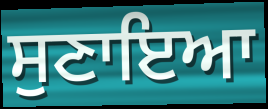
ਸੁਣਾਇਆ